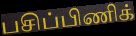
பசிப்பிணிக்